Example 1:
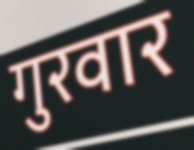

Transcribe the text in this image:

गुरवार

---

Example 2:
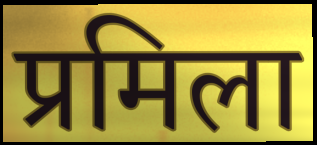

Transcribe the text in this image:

प्रमिला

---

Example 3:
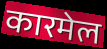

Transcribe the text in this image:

कारमेल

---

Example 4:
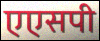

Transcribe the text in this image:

एएसपी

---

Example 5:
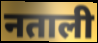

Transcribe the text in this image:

नताली